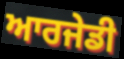
ਆਰਜੇਡੀ